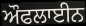
ਔਫਲਾਈਨ